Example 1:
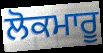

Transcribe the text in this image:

ਲੋਕਮਾਰੂ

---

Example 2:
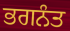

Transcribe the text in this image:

ਭਗਨੰਤ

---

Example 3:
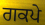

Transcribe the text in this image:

ਗਕਪੇ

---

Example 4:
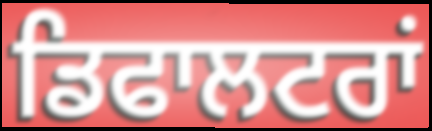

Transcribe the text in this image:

ਡਿਫਾਲਟਰਾਂ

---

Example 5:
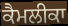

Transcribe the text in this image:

ਕੈਮਲੀਕਾ